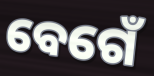
ବେଗେଁ